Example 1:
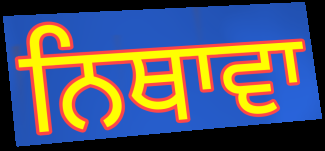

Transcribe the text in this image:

ਨਿਥਾਵਾ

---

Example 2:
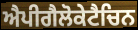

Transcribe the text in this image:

ਐਪੀਗੈਲੋਕੇਟੈਚਿਨ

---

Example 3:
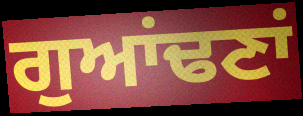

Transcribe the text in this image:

ਗੁਆਂਢਣਾਂ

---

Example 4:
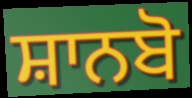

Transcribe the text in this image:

ਸ਼ਾਨਬੋ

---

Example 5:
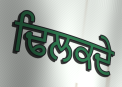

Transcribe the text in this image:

ਢਿਲਕਦੇ